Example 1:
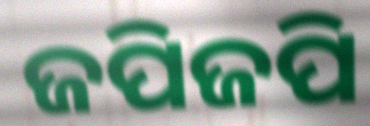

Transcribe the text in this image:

ଜପିଜପି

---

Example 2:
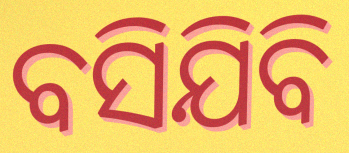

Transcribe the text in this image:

ବସିଯିବି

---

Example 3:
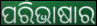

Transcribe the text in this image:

ପରିଭାଷାର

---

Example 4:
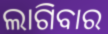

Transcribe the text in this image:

ଲାଗିବାର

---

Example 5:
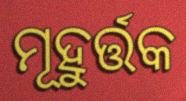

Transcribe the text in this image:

ମୂହୁର୍ତ୍ତକ